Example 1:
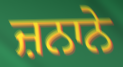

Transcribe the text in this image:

ਜ਼ਨਾਨੇ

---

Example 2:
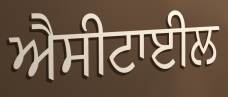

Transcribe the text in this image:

ਐਸੀਟਾਈਲ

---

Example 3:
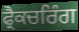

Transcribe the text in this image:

ਫ੍ਰੈਕਚਰਿੰਗ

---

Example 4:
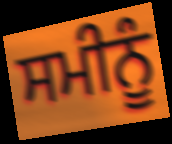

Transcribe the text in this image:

ਸਮੀਨੂੰ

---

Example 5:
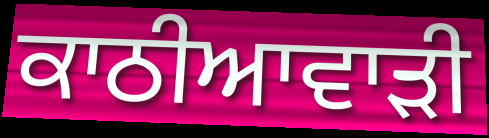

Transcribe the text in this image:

ਕਾਠੀਆਵਾੜੀ